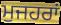
ਮੁਜਹਰਾਂ